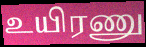
உயிரணு